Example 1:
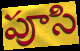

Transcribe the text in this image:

పూసి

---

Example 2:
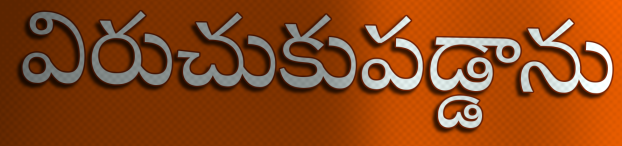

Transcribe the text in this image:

విరుచుకుపడ్డాను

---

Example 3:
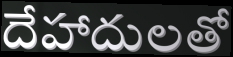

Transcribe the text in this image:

దేహాదులతో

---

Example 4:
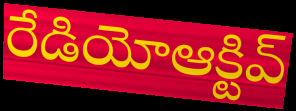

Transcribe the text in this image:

రేడియోఆక్టివ్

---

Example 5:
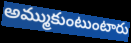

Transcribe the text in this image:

అమ్ముకుంటుంటారు